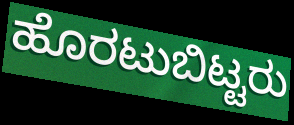
ಹೊರಟುಬಿಟ್ಟರು